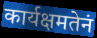
कार्यक्षमतेनं